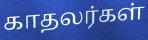
காதலர்கள்